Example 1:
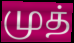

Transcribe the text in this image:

முத்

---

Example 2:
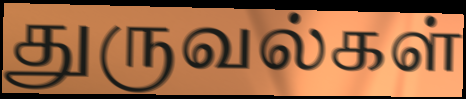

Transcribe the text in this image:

துருவல்கள்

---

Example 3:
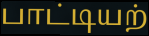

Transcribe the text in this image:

பாட்டியற்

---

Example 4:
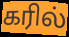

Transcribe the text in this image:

கரில்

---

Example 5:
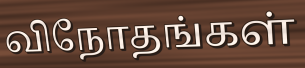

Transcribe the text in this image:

விநோதங்கள்